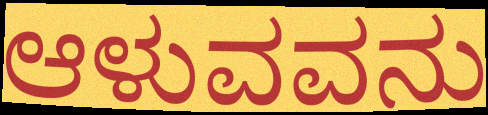
ಆಳುವವನು